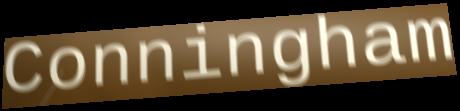
Conningham